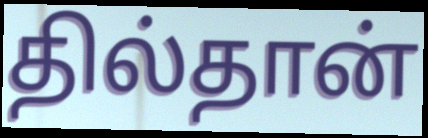
தில்தான்